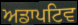
ਅਡਾਪਟਿਵ